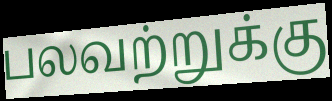
பலவற்றுக்கு